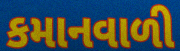
કમાનવાળી